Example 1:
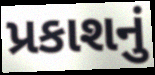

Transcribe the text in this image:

પ્રકાશનું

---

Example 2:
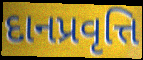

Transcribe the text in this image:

દાનપ્રવૃત્તિ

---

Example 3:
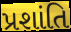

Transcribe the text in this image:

પ્રશાંતિ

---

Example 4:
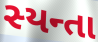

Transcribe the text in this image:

સ્યન્તા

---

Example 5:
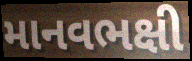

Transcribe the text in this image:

માનવભક્ષી